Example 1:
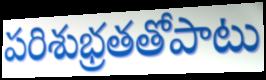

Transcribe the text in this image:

పరిశుభ్రతతోపాటు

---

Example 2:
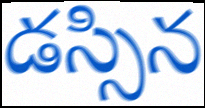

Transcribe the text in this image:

డస్సిన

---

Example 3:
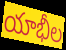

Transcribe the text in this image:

యాభీల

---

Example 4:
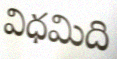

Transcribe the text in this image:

విధమిది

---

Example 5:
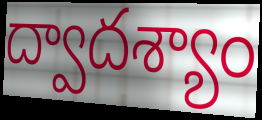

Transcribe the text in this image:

ద్వాదశ్యాం